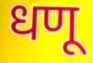
धणू